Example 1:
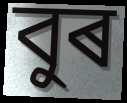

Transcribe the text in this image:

বুৰ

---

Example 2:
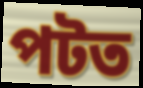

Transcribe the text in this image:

পটত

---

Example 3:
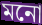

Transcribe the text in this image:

মনো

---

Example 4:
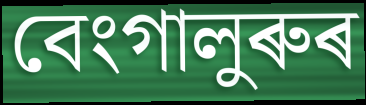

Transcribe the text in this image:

বেংগালুৰুৰ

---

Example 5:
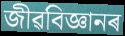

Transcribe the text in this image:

জীৱবিজ্ঞানৰ